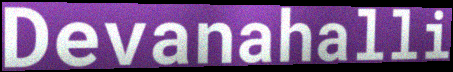
Devanahalli